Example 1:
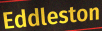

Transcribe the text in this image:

Eddleston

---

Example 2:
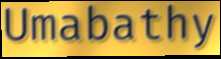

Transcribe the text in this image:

Umabathy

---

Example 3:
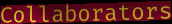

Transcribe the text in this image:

Collaborators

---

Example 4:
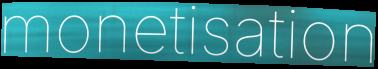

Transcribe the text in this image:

monetisation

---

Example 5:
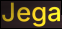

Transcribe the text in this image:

Jega